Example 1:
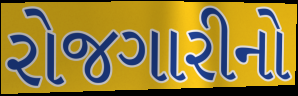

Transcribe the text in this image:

રોજગારીનો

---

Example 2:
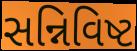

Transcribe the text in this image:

સન્નિવિષ્ટ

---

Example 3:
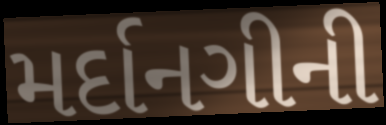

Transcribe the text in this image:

મર્દાનગીની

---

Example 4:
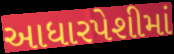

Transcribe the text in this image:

આધારપેશીમાં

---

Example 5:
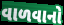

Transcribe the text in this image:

વાળવાનો